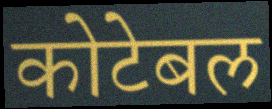
कोटेबल